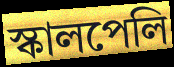
স্কালপেলি